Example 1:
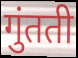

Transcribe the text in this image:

गुंतती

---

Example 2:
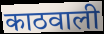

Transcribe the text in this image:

काठवाली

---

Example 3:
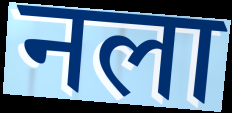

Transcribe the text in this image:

नला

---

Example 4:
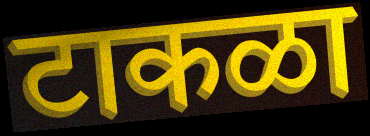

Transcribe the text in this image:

टाकळा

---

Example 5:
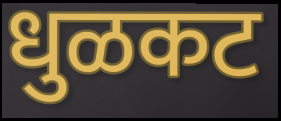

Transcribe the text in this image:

धुळकट